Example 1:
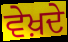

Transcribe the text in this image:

ਵੇਖ਼ਦੇ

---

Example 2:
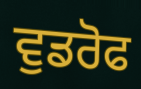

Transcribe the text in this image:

ਵੁਡਰੋਫ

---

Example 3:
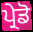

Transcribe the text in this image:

ਪ੍ਰੇਡੋ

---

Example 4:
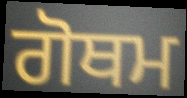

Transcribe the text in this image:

ਗੋਥਮ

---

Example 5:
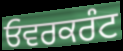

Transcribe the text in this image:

ਓਵਰਕਰੰਟ